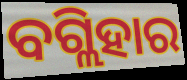
ବଗ୍ଲିହାର